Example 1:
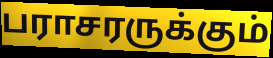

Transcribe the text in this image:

பராசரருக்கும்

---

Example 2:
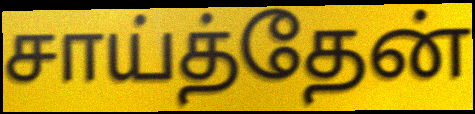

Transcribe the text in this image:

சாய்த்தேன்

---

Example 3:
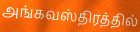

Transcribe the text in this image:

அங்கவஸ்திரத்தில்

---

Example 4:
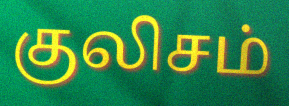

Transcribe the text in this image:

குலிசம்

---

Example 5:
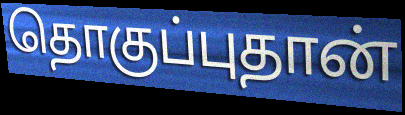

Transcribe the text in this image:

தொகுப்புதான்